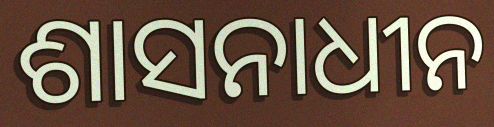
ଶାସନାଧୀନ